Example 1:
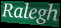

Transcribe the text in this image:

Ralegh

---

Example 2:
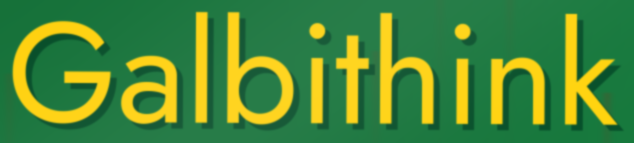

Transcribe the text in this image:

Galbithink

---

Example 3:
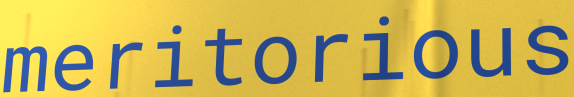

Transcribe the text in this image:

meritorious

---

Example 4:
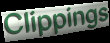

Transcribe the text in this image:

Clippings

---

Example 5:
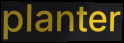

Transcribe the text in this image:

planter